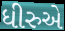
ધીરુએ